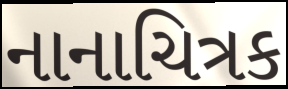
નાનાચિત્રક